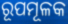
ରୂପମୂଳକ